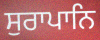
ਸੁਰਾਪਾਨਿ